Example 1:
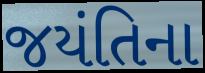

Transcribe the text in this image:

જયંતિના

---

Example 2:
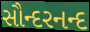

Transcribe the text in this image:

સૌન્દરનન્દ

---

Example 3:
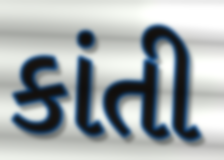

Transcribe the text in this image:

કાંતી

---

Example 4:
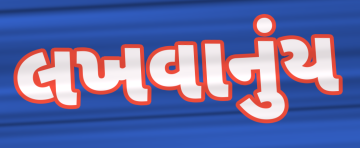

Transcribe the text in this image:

લખવાનુંય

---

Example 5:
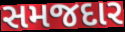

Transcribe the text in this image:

સમજદાર